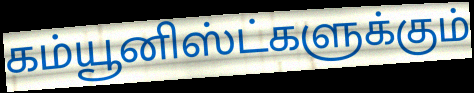
கம்யூனிஸ்ட்களுக்கும்